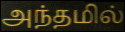
அந்தமில்